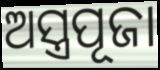
ଅସ୍ତ୍ରପୂଜା